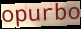
opurbo